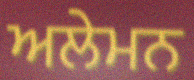
ਅਲੇਮਨ